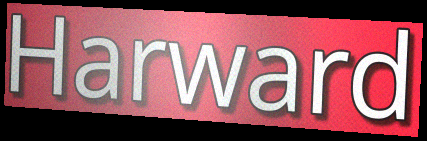
Harward